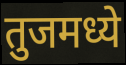
तुजमध्ये